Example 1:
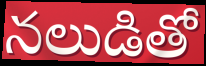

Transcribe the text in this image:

నలుడితో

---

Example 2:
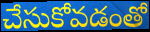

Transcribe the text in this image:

చేసుకోవడంతో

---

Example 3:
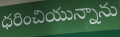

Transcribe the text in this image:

ధరించియున్నాను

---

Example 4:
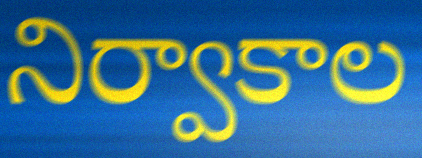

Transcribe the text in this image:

నిర్వాకాల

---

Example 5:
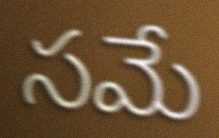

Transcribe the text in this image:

సమే